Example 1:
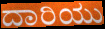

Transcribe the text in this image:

ದಾರಿಯು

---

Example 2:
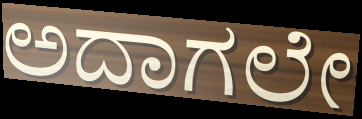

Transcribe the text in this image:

ಅದಾಗಲೇ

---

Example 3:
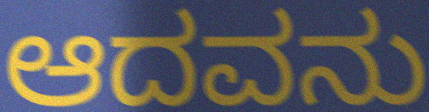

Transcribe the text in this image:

ಆದವನು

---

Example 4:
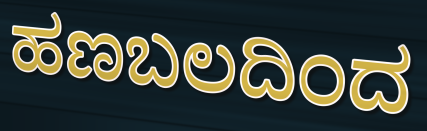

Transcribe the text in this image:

ಹಣಬಲದಿಂದ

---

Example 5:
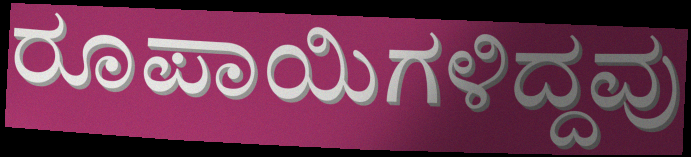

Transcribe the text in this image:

ರೂಪಾಯಿಗಳಿದ್ದವು